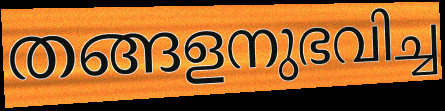
തങ്ങളനുഭവിച്ച